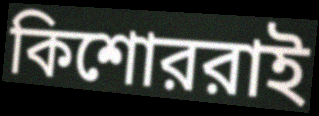
কিশোররাই